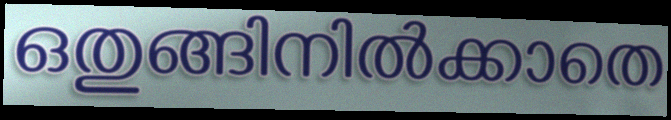
ഒതുങ്ങിനിൽക്കാതെ